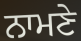
ਨਾਮਣੇ